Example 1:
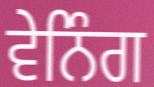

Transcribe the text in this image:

ਵੇਨਿੰਗ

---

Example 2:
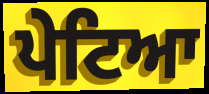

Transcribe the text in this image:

ਪੇਟਿਆ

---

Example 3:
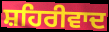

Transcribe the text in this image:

ਸ਼ਹਿਰੀਵਾਦ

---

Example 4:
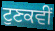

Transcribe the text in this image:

ਟੁਣਕਵੀਂ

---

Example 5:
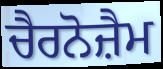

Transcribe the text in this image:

ਚੈਰਨੋਜ਼ੈਮ